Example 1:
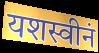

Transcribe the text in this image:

यशस्वीनं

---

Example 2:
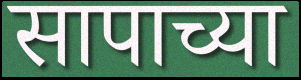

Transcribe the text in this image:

सापाच्या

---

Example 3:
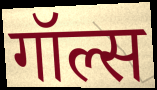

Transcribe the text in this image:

गॉल्स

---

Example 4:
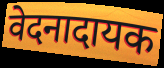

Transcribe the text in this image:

वेदनादायक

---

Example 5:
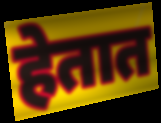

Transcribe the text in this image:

हेतात